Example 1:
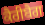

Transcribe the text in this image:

ਕੈਰੀਬੈਗ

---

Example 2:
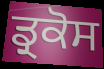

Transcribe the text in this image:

ਡ੍ਰਕੋਸ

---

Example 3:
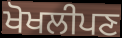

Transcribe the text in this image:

ਖੋਖਲੀਪਣ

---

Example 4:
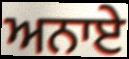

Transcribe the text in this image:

ਅਨਾਏ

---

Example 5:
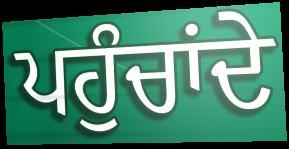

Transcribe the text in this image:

ਪਹੁੰਚਾਂਦੇ